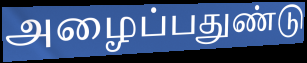
அழைப்பதுண்டு